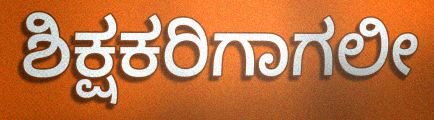
ಶಿಕ್ಷಕರಿಗಾಗಲೀ